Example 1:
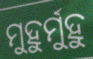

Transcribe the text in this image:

ମୁହୁର୍ମୁହୁ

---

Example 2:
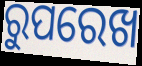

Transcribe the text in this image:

ରୁପରେଖ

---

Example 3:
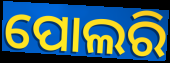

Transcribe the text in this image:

ପୋଲରି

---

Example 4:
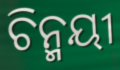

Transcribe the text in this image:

ଚିନ୍ମୟୀ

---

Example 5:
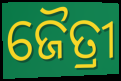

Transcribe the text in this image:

ଜୈତ୍ରୀ